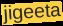
jigeeta